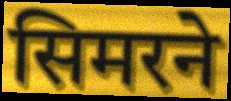
सिमरने